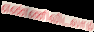
எண்ணிவிடலாம்